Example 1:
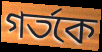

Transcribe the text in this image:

গর্তকে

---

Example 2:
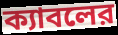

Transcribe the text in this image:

ক্যাবলের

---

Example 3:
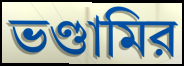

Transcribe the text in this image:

ভণ্ডামির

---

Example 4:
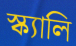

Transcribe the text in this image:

স্ক্যালি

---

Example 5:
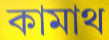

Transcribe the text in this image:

কামাথ